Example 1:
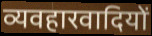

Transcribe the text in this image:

व्यवहारवादियों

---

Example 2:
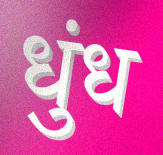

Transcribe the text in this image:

धुंध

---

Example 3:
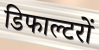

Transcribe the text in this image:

डिफाल्टरों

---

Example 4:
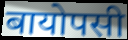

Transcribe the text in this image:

बायोपसी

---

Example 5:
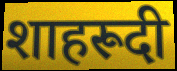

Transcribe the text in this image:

शाहरूदी